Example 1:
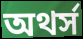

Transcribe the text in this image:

অথর্স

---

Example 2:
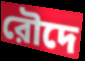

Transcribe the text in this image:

রৌদে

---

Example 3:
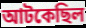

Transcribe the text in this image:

আটকেছিল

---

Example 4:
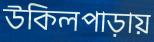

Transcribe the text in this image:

উকিলপাড়ায়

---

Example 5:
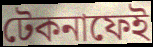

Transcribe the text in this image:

টেকনাফেই